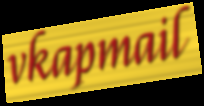
vkapmail